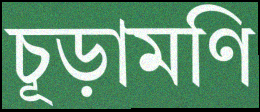
চূড়ামণি